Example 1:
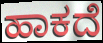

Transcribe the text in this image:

ಹಾಕದೆ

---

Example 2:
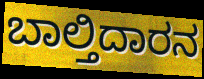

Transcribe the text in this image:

ಬಾಲ್ತಿದಾರನ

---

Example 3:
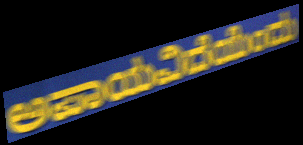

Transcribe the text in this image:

ಅಪಾಯವಿದೆಯೆಂದು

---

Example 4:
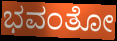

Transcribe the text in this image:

ಭವಂತೋ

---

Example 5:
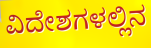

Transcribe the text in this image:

ವಿದೇಶಗಳಲ್ಲಿನ